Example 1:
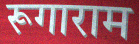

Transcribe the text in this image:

रूगाराम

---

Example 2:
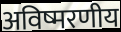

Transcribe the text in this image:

अविष्मरणीय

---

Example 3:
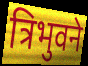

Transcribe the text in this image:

त्रिभुवने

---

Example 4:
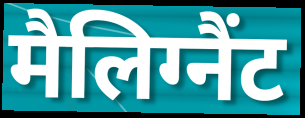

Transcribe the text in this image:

मैलिग्नैंट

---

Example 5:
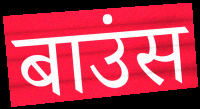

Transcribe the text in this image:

बाउंस